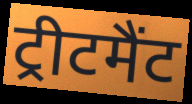
ट्रीटमैंट